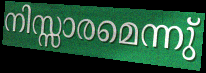
നിസ്സാരമെന്നു്